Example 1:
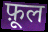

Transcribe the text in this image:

फ़ूल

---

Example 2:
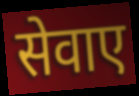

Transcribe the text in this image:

सेवाए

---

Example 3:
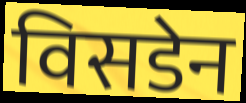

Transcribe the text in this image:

विसडेन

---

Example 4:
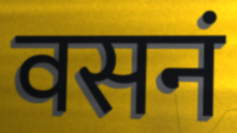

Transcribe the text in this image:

वसनं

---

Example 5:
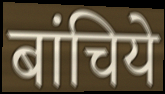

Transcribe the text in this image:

बांचिये